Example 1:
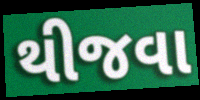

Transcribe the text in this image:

થીજવા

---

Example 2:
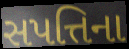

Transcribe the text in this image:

સપત્તિના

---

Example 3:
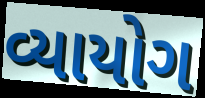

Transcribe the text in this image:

વ્યાયોગ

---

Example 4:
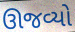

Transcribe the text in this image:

ઊજવ્યો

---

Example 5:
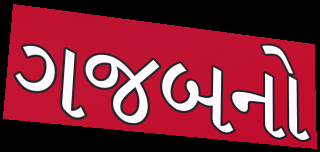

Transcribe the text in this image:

ગજબનો